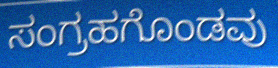
ಸಂಗ್ರಹಗೊಂಡವು